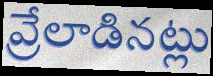
వ్రేలాడినట్లు